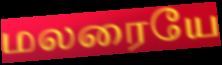
மலரையே